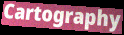
Cartography